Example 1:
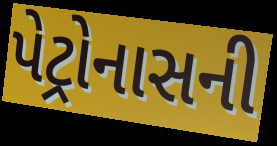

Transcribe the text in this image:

પેટ્રોનાસની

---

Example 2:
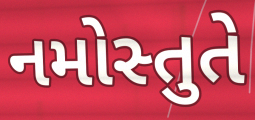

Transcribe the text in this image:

નમોસ્તુતે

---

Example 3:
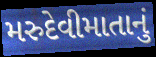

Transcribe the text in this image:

મરુદેવીમાતાનું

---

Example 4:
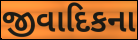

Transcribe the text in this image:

જીવાદિકના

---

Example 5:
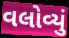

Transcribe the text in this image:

વલોવ્યું